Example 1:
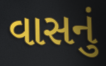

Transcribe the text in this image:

વાસનું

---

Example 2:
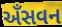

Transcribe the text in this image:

અઁસવન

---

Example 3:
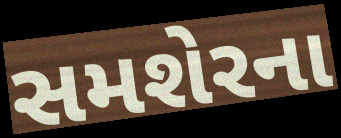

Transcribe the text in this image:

સમશેરના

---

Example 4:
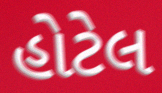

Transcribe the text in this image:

હોટેલ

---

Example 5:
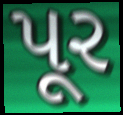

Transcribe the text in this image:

પૂર